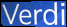
Verdi